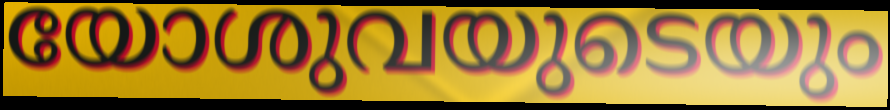
യോശുവയുടെയും